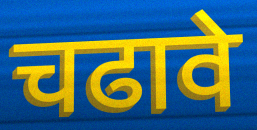
चढावे